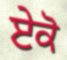
ਏਕੋ